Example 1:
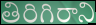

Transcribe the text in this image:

తిరిగిరాని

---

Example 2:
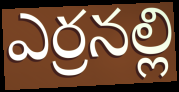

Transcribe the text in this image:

ఎర్రనల్లి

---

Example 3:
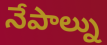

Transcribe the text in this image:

నేపాల్ను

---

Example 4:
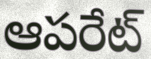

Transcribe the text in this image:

ఆపరేట్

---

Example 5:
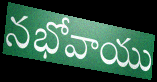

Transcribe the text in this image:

నభోవాయు